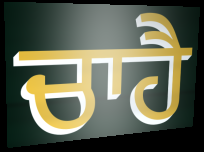
ਚਾਹੈ